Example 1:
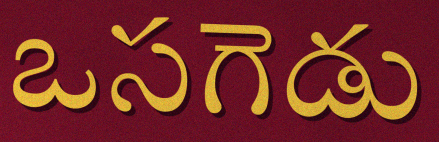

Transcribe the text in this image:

ఒసగెడు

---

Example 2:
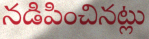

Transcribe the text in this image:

నడిపించినట్లు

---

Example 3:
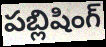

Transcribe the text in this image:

పబ్లిషింగ్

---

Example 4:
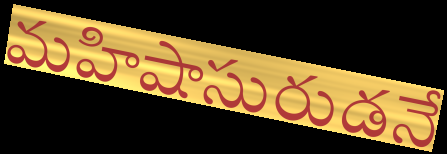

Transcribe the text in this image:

మహిషాసురుడనే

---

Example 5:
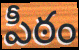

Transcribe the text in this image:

పీఠం